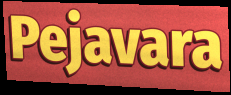
Pejavara